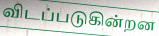
விடப்படுகின்றன